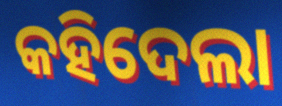
କହିଦେଲା